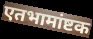
एतभामांष्टक